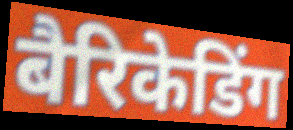
बैरिकेडिंग